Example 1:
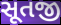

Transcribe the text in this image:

સૂતજી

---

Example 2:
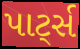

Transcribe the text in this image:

પાર્ટ્સ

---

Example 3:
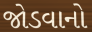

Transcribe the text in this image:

જોડવાનો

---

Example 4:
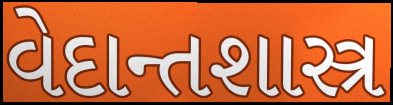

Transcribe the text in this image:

વેદાન્તશાસ્ત્ર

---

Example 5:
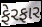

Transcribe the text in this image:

ફેરફાર